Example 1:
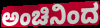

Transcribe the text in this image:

ಅಂಚಿನಿಂದ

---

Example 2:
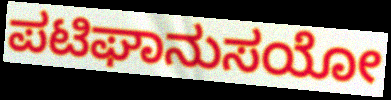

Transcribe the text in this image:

ಪಟಿಘಾನುಸಯೋ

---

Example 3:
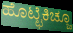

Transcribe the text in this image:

ಹೊಟ್ಟೆಕಿಚ್ಚೂ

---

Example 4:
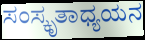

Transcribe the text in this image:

ಸಂಸ್ಕೃತಾಧ್ಯಯನ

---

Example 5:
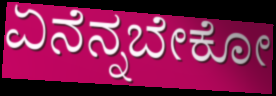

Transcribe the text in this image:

ಏನೆನ್ನಬೇಕೋ